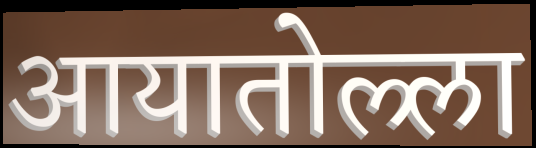
आयातोल्ला